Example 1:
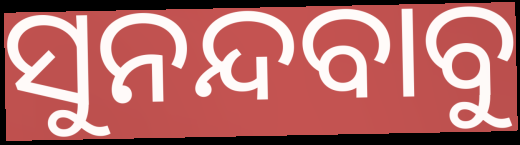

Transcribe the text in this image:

ସୁନନ୍ଦବାବୁ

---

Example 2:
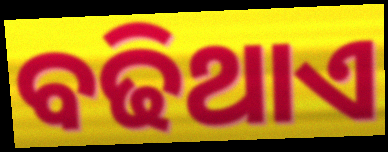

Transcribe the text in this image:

ବଢିଥାଏ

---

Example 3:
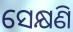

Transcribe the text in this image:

ସେକ୍ଷଣି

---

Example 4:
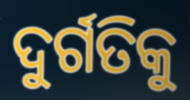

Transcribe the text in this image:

ଦୁର୍ଗତିକୁ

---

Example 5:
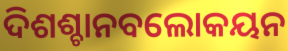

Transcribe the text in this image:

ଦିଶଶ୍ଚାନବଲୋକୟନ